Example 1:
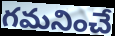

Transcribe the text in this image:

గమనించే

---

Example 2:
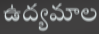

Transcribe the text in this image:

ఉద్యమాల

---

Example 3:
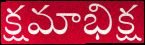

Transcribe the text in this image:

క్షమాభిక్ష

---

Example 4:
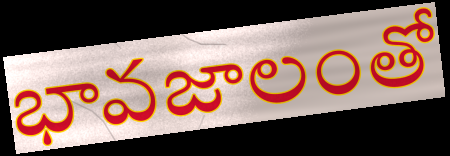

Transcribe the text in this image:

భావజాలంతో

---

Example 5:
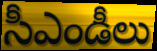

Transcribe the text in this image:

సీఎండీలు